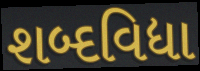
શબ્દવિદ્યા